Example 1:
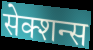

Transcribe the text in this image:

सेक्शन्स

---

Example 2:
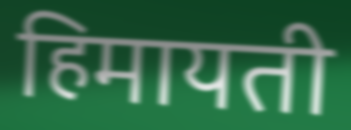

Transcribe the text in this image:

हिमायती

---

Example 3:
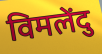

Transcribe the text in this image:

विमलेंदु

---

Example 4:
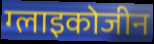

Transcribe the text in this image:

ग्लाइकोजीन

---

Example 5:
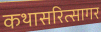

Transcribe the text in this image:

कथासरित्सागर